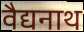
वैद्यनाथ